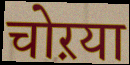
चोऱया